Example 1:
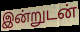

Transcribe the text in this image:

இன்றுடன்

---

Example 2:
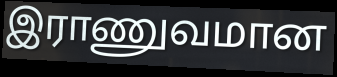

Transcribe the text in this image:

இராணுவமான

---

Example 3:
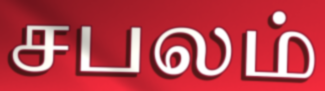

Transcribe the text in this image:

சபலம்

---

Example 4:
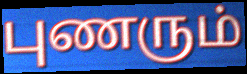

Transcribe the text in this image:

புணரும்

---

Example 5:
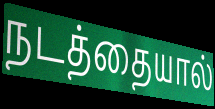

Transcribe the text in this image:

நடத்தையால்